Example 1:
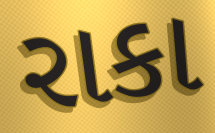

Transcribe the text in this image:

રાકા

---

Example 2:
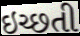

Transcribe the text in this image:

ઇચ્છતી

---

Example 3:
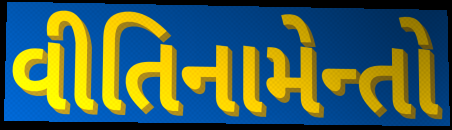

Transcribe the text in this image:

વીતિનામેન્તો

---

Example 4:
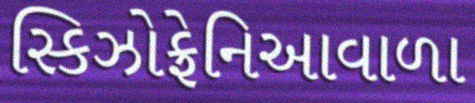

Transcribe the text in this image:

સ્કિઝોફ્રેનિઆવાળા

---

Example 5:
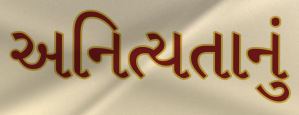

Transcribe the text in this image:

અનિત્યતાનું